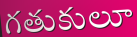
గతుకులూ